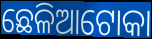
ଛେଳିଆଟୋକା